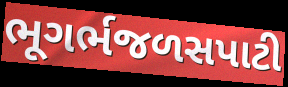
ભૂગર્ભજળસપાટી